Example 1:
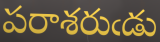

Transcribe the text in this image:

పరాశరుఁడు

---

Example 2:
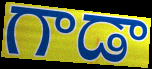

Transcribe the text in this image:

గాడా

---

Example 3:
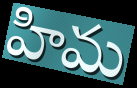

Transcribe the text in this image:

హిమ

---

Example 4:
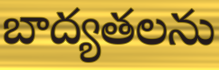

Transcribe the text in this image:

బాద్యతలను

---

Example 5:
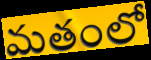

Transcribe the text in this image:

మతంలో